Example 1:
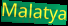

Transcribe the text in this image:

Malatya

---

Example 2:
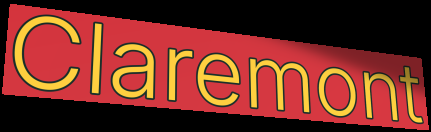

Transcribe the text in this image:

Claremont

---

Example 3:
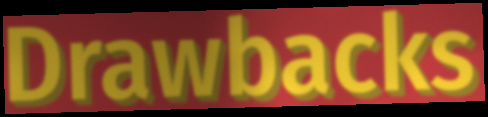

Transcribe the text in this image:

Drawbacks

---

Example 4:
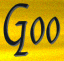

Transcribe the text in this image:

Goo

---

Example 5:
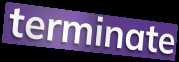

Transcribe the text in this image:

terminate